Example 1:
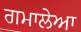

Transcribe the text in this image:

ਗਮਾਲੇਆ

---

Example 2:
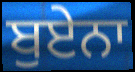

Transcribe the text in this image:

ਬੁਏਨਾ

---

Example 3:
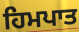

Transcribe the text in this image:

ਹਿਮਪਾਤ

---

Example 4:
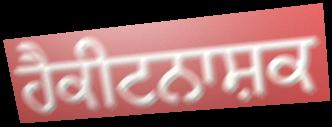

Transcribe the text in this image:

ਹੈਕੀਟਨਾਸ਼ਕ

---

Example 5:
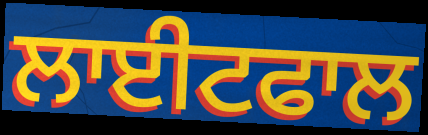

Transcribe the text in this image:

ਲਾਈਟਫਾਲ